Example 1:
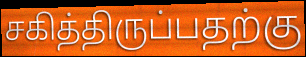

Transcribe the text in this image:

சகித்திருப்பதற்கு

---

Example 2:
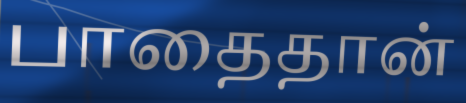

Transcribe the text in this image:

பாதைதான்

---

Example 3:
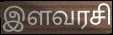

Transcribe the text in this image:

இளவரசி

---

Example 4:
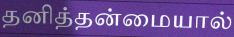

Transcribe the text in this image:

தனித்தன்மையால்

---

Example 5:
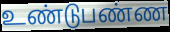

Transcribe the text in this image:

உண்டுபண்ண